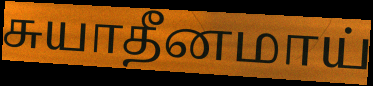
சுயாதீனமாய்